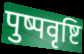
पुष्पवृष्टि